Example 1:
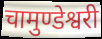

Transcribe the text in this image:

चामुण्डेश्वरी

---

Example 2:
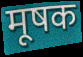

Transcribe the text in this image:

मूषक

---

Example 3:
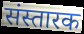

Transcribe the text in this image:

संस्तारक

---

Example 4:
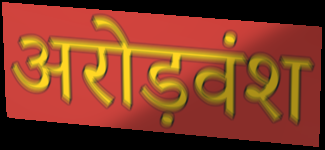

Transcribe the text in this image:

अरोड़वंश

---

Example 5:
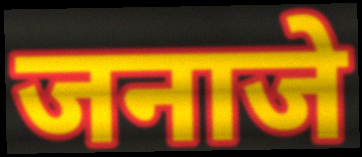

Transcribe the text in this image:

जनाजे